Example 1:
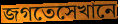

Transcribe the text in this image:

জগতেসেখানে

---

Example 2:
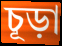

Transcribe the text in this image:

চূড়া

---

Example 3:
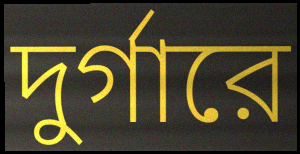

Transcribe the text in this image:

দুর্গারে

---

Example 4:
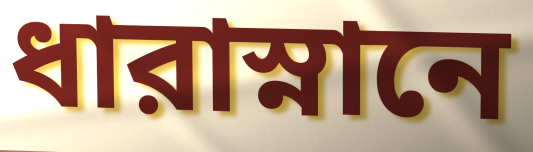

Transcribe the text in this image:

ধারাস্নানে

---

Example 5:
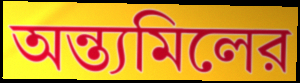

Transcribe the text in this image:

অন্ত্যমিলের